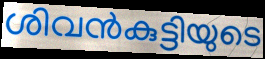
ശിവൻകുട്ടിയുടെ